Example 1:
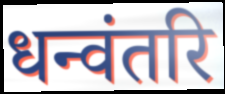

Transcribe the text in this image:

धन्वंतरि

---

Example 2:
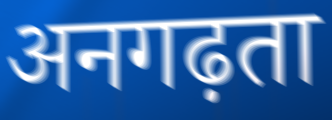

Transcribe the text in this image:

अनगढ़ता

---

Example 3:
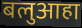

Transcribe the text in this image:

बलुआहा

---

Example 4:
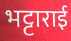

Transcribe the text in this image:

भट्टाराई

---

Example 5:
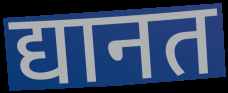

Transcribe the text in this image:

द्यानत